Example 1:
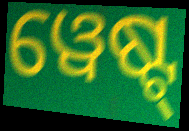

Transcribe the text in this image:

ୱେଷ୍ଟ୍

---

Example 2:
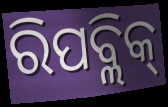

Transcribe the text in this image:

ରିପବ୍ଲିକ୍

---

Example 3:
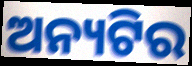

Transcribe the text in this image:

ଅନ୍ୟଟିର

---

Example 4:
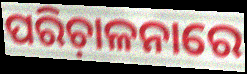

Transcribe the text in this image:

ପରିଚ଼ାଳନାରେ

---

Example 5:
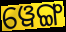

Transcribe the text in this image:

ୱେଙ୍ଗ